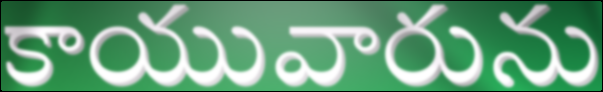
కాయువారును